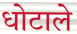
धोटाले